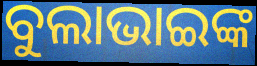
ବୁଲାଭାଇଙ୍କ